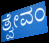
ತ್ವೇವಂ